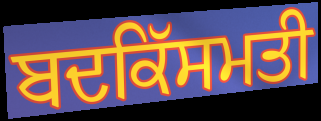
ਬਦਕਿੱਸਮਤੀ